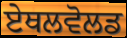
ਏਥਲਵੋਲਡ